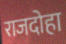
राजदोहा